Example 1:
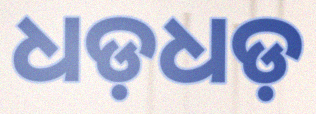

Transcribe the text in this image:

ଧଡ଼ଧଡ଼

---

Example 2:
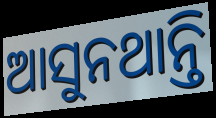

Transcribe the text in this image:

ଆସୁନଥାନ୍ତି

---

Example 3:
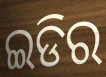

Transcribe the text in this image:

ଇଡିର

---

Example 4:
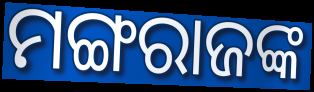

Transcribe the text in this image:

ମଙ୍ଗରାଜଙ୍କ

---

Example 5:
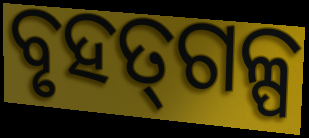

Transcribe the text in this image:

ବୃହତ୍‌ଗଳ୍ପ